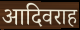
आदिवराह